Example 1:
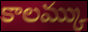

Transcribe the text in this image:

కాలమ్కు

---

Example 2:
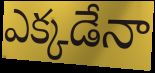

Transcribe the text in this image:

ఎక్కడేనా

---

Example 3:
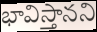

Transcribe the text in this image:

భావిస్తానని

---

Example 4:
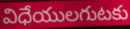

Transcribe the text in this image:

విధేయులగుటకు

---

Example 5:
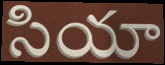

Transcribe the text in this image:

సియా